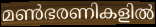
മൺഭരണികളിൽ